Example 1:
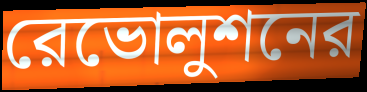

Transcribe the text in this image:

রেভোলুশনের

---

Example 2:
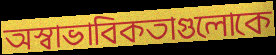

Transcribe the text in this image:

অস্বাভাবিকতাগুলোকে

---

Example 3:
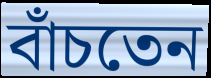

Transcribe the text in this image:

বাঁচতেন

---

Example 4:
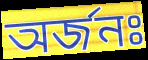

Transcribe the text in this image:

অর্জনঃ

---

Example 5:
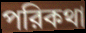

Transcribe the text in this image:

পরিকথা